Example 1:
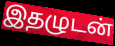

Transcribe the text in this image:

இதழுடன்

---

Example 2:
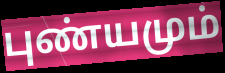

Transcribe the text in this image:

புண்யமும்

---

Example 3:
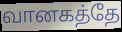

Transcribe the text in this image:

வானகத்தே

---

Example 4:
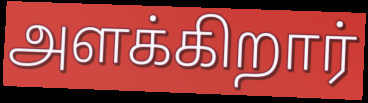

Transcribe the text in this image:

அளக்கிறார்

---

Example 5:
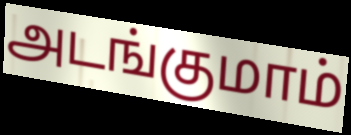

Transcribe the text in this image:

அடங்குமாம்